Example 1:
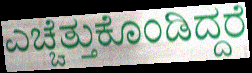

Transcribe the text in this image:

ಎಚ್ಚೆತ್ತುಕೊಂಡಿದ್ದರೆ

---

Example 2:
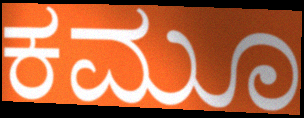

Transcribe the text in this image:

ಕಮೂ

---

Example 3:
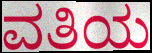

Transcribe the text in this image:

ವತಿಯ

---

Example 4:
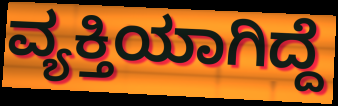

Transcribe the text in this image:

ವ್ಯಕ್ತಿಯಾಗಿದ್ದೆ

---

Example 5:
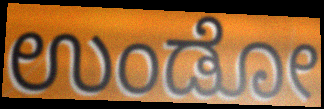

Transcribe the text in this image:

ಉಂಡೋ